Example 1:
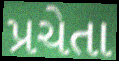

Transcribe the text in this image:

પ્રચેતા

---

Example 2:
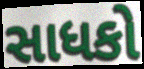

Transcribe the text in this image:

સાધકો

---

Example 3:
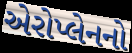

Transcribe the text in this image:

એરોપ્લેનનો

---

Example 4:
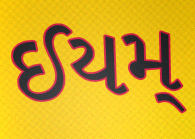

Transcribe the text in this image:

ઈયમ્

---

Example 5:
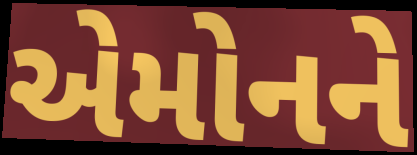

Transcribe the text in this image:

એમોનને